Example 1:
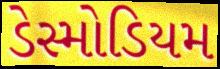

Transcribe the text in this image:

ડેસ્મોડિયમ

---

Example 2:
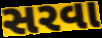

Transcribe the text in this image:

સરવા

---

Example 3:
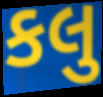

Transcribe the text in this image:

કલુ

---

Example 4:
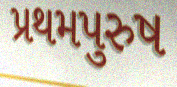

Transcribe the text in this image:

પ્રથમપુરુષ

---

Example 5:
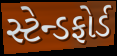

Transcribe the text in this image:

સ્ટેન્ડફોર્ડ